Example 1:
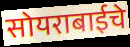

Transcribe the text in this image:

सोयराबाईचे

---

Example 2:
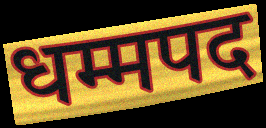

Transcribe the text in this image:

धम्मपद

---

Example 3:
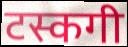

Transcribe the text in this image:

टस्कगी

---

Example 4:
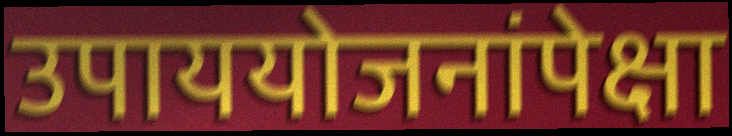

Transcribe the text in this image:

उपाययोजनांपेक्षा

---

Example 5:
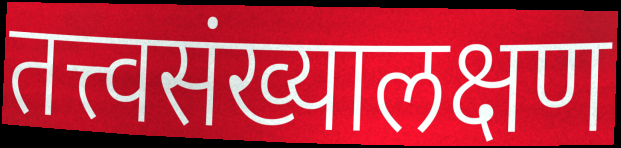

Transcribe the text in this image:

तत्त्वसंख्यालक्षण